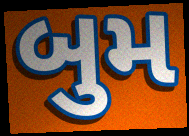
બુમ